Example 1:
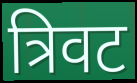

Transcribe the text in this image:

त्रिवट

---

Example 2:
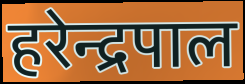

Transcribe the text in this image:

हरेन्द्रपाल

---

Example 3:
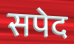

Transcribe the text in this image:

सपेद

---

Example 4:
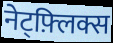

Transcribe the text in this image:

नेट्फ़्लिक्स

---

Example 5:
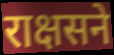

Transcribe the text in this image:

राक्षसने